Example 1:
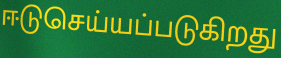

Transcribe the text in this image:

ஈடுசெய்யப்படுகிறது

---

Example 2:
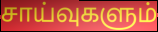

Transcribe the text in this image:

சாய்வுகளும்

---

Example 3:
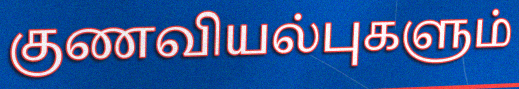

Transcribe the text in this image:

குணவியல்புகளும்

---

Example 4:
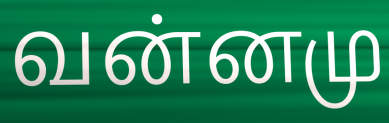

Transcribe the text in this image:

வன்னமு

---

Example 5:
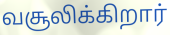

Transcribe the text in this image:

வசூலிக்கிறார்